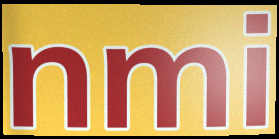
nmi